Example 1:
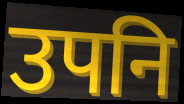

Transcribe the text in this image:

उपनि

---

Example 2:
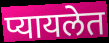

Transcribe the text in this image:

प्यायलेत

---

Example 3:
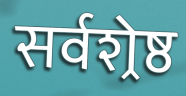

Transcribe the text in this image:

सर्वश्रेष्ठ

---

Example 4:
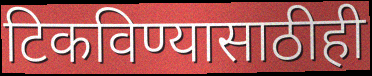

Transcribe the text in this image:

टिकविण्यासाठीही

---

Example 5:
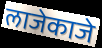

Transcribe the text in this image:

लाजेकाजे